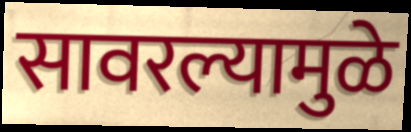
सावरल्यामुळे